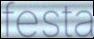
festa